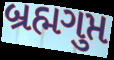
બ્રહ્મગુપ્ત